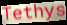
Tethys